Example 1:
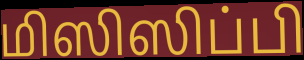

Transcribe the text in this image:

மிஸிஸிப்பி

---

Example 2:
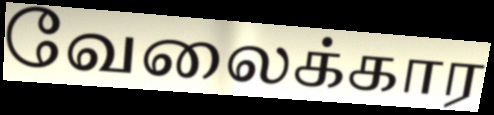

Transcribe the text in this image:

வேலைக்கார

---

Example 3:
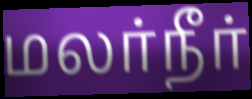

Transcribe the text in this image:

மலர்நீர்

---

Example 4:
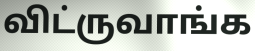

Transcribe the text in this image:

விட்ருவாங்க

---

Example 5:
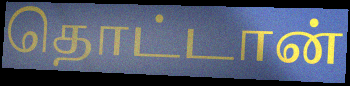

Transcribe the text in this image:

தொட்டான்